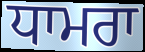
ਧਾਮਰਾ